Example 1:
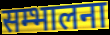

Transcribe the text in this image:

सम्भालना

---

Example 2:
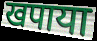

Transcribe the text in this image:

खपाया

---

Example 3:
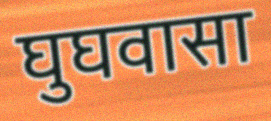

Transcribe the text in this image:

घुघवासा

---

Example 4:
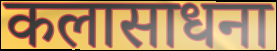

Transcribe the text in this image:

कलासाधना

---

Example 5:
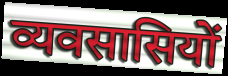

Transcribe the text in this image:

व्यवसासियों